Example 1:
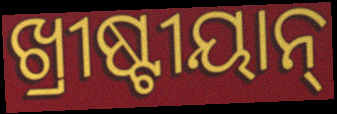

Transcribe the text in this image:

ଖ୍ରୀଷ୍ଟୀୟାନ୍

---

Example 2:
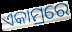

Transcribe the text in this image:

ଏକାମ୍ରରେ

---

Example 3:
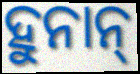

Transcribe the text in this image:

ହୁନାନ୍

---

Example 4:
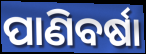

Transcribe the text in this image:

ପାଣିବର୍ଷା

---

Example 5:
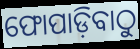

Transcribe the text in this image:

ଫୋପାଡ଼ିବାଠୁ